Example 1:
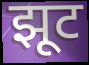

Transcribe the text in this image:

झूट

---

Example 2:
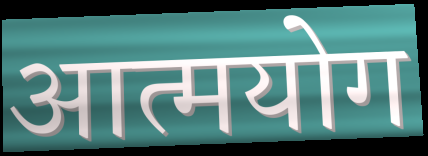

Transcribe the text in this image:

आत्मयोग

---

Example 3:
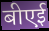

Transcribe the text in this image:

बीएई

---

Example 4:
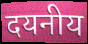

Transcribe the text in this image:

दयनीय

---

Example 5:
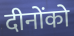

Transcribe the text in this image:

दीनोंको